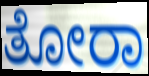
ತೋರಾ